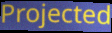
Projected